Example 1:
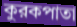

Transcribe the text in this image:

কুরকপাতা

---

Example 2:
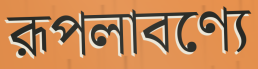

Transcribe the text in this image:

রূপলাবণ্যে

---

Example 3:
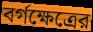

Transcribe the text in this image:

বর্গক্ষেত্রের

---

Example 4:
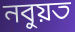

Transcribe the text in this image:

নবুয়ত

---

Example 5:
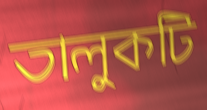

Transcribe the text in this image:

তালুকটি